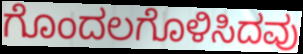
ಗೊಂದಲಗೊಳಿಸಿದವು